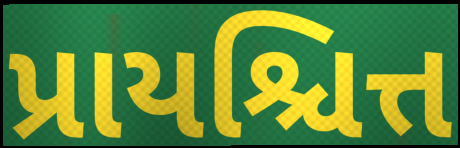
પ્રાયશ્ચિત્ત